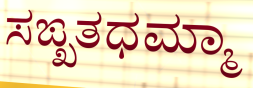
ಸಙ್ಖತಧಮ್ಮಾ